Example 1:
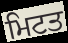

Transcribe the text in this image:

ਮਿਟਤ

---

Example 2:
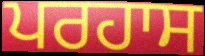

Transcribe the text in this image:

ਪਰਹਾਸ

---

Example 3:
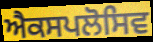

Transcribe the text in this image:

ਐਕਸਪਲੋਸਿਵ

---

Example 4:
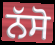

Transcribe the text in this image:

ਨੱਸੋ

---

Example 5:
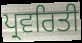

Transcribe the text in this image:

ਪ੍ਰਵਰਿਤੀ